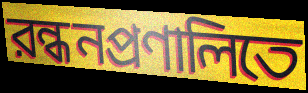
রন্ধনপ্রণালিতে